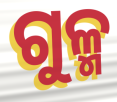
ଗୁଳ୍ମ